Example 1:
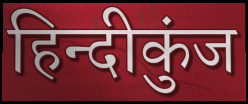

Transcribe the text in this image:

हिन्दीकुंज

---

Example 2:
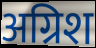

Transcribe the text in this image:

अग्रिश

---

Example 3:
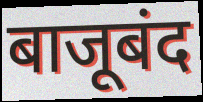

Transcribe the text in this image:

बाजूबंद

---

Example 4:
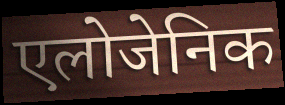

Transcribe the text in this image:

एलोजेनिक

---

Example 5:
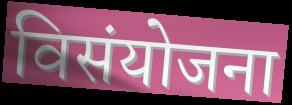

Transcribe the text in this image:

विसंयोजना